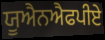
ਯੂਐਨਐਫਪੀਏ